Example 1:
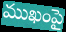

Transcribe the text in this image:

ముఖంపై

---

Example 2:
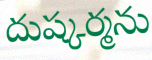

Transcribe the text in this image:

దుష్కర్మను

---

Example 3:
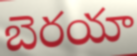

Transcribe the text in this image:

బెరయా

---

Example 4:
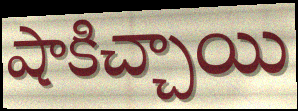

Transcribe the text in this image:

షాకిచ్చాయి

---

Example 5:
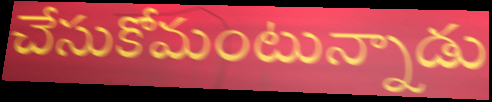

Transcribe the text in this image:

చేసుకోమంటున్నాడు